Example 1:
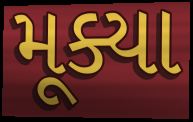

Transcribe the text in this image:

મૂક્યા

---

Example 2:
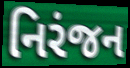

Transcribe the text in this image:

નિરંજન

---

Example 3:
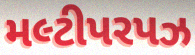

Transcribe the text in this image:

મલ્ટીપરપઝ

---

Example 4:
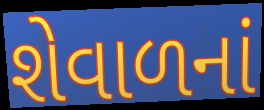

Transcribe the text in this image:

શેવાળનાં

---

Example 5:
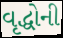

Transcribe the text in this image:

વૃદ્ધોની